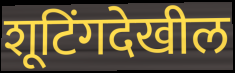
शूटिंगदेखील